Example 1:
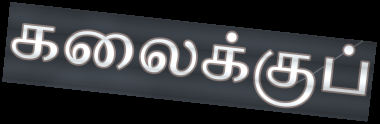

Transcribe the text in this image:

கலைக்குப்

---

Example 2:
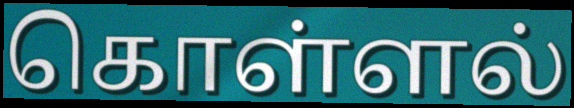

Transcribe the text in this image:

கொள்ளல்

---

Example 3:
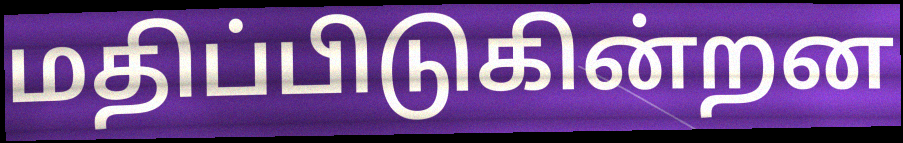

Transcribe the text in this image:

மதிப்பிடுகின்றன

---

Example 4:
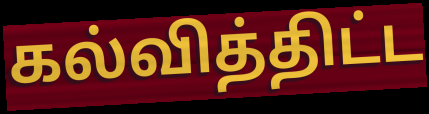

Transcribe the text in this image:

கல்வித்திட்ட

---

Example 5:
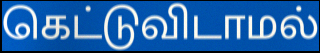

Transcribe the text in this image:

கெட்டுவிடாமல்